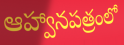
ఆహ్వానపత్రంలో